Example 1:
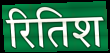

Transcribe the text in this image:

रितिश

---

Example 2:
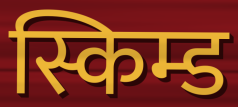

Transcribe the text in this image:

स्किम्ड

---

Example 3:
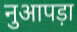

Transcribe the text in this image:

नुआपड़ा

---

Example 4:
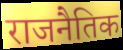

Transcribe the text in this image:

राजनैतिक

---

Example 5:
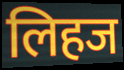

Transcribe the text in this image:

लिहज